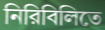
নিরিবিলিতে